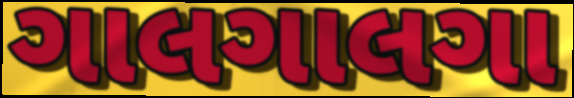
ગાલગાલગા